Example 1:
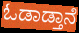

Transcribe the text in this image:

ಓಡಾಡ್ತಾನೆ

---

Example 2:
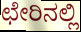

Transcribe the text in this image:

ಛೇರಿನಲ್ಲಿ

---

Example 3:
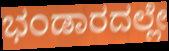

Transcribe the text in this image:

ಭಂಡಾರದಲ್ಲೇ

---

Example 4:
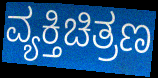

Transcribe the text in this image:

ವ್ಯಕ್ತಿಚಿತ್ರಣ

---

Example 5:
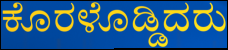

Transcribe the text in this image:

ಕೊರಳೊಡ್ಡಿದರು